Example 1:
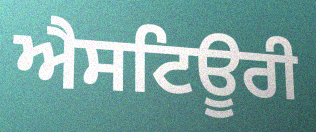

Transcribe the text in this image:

ਐਸਟਿਊਰੀ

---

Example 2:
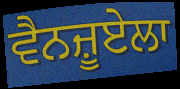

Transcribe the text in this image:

ਵੈਨਜ਼ੂਏਲਾ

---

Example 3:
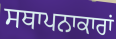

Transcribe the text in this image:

ਸਥਾਪਨਾਕਾਰਾਂ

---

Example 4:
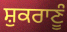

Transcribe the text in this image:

ਸ਼ੁਕਰਾਣੂੰ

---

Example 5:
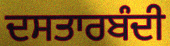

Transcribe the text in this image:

ਦਸਤਾਰਬੰਦੀ